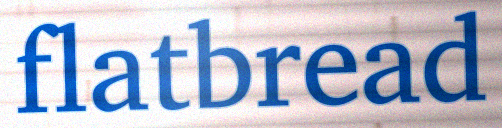
flatbread